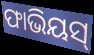
ଫାଭିୟସ୍